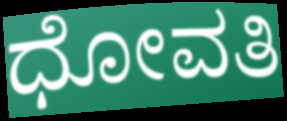
ಧೋವತಿ